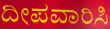
ದೀಪವಾರಿಸಿ